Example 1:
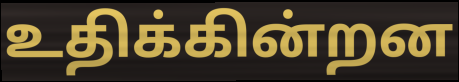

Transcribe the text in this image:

உதிக்கின்றன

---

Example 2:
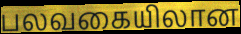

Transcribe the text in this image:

பலவகையிலான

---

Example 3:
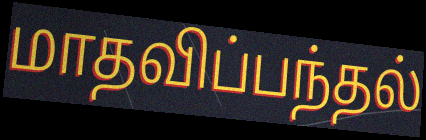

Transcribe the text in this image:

மாதவிப்பந்தல்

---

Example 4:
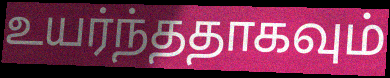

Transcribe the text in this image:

உயர்ந்ததாகவும்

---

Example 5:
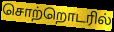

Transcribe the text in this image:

சொற்றொடரில்